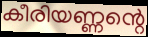
കീരിയണ്ണന്റെ